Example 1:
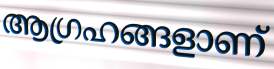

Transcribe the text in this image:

ആഗ്രഹങ്ങളാണ്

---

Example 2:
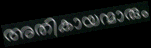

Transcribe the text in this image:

അതികായന്മാരും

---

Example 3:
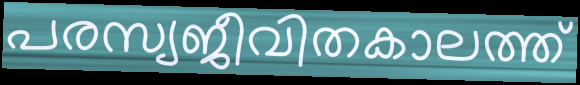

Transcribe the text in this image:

പരസ്യജീവിതകാലത്ത്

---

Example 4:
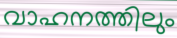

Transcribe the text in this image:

വാഹനത്തിലും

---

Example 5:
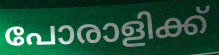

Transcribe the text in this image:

പോരാളിക്ക്